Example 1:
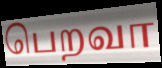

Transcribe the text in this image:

பெறவா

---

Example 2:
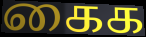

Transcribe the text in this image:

கைக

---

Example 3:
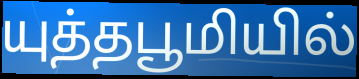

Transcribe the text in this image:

யுத்தபூமியில்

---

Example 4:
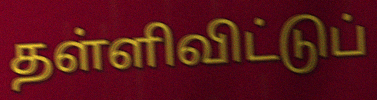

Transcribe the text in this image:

தள்ளிவிட்டுப்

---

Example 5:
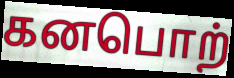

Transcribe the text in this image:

கனபொற்